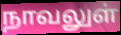
நாவலுள்